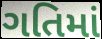
ગતિમાં